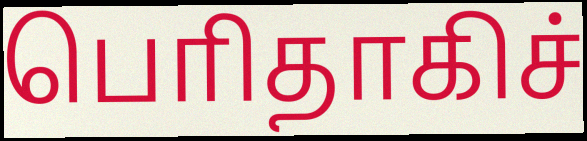
பெரிதாகிச்